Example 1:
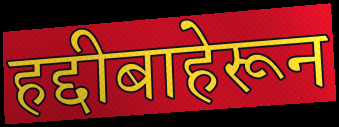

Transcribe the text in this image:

हद्दीबाहेरून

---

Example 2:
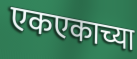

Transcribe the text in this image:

एकएकाच्या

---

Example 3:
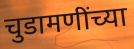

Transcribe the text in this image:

चुडामणींच्या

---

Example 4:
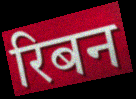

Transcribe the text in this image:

रिबन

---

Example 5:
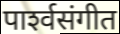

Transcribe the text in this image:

पार्श्‍वसंगीत